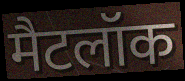
मैटलॉक